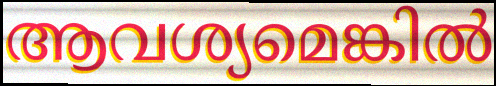
ആവശ്യമെങ്കിൽ